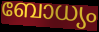
ബോധ്യം